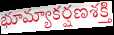
భూమ్యాకర్షణశక్తి